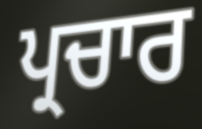
ਪ੍ਰਚਾਰ